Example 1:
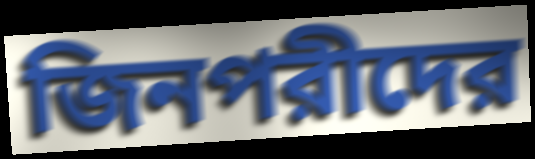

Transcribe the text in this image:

জিনপরীদের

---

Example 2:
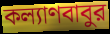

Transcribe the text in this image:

কল্যাণবাবুর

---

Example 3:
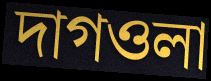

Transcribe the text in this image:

দাগওলা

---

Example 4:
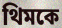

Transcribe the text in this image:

থিমকে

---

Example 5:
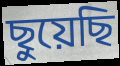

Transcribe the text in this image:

ছুয়েছি